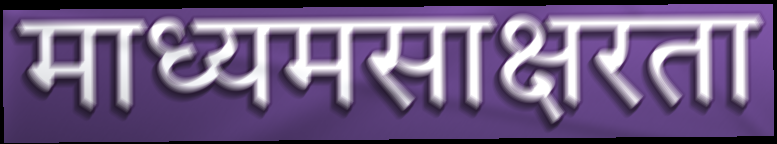
माध्यमसाक्षरता